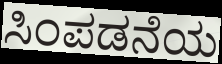
ಸಿಂಪಡನೆಯ